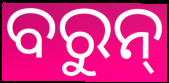
ବରୁନ୍